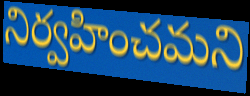
నిర్వహించమని